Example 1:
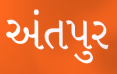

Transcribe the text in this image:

અંતપુર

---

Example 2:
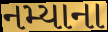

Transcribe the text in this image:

નમ્યાના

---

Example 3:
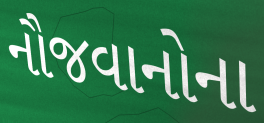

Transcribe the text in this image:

નૌજવાનોના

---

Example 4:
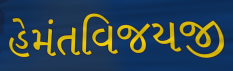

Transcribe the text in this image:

હેમંતવિજયજી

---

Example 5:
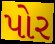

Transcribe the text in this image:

પોર